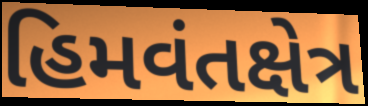
હિમવંતક્ષેત્ર